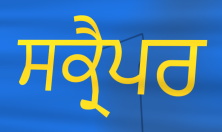
ਸਕ੍ਰੈਪਰ